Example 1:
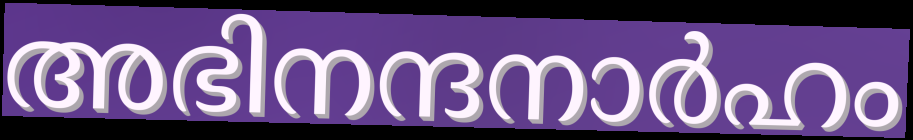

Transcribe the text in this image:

അഭിനന്ദനാർഹം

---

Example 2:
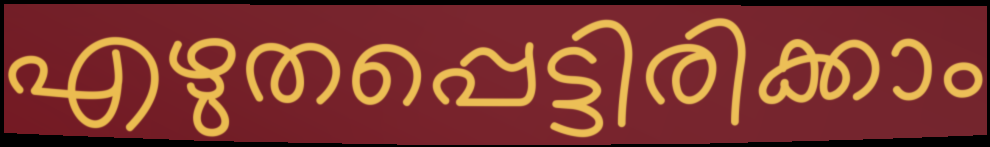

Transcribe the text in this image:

എഴുതപ്പെട്ടിരിക്കാം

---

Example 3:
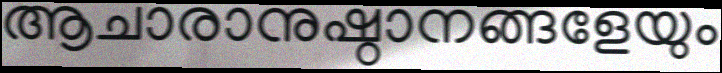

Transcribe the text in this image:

ആചാരാനുഷ്ഠാനങ്ങളേയും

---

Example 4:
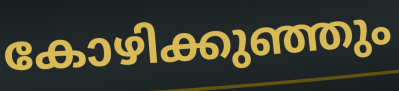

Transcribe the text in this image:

കോഴിക്കുഞ്ഞും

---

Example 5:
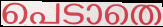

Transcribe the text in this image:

പെടാതെ